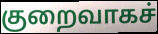
குறைவாகச்